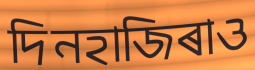
দিনহাজিৰাও